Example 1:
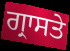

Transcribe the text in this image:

ਗ੍ਰਾਸਤੇ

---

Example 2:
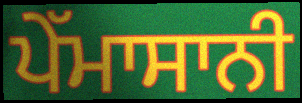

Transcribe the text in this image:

ਪੇੱਮਾਸਾਨੀ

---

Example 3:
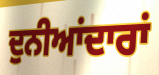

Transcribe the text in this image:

ਦੁਨੀਆਂਦਾਰਾਂ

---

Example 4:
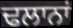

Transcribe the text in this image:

ਢਲਾਨਾਂ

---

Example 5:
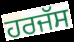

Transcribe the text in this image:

ਹਰਜੱਸ